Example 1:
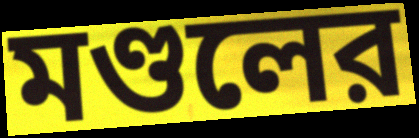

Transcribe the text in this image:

মণ্ডলের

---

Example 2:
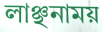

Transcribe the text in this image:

লাঞ্ছনাময়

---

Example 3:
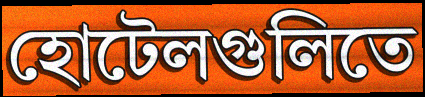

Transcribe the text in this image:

হোটেলগুলিতে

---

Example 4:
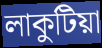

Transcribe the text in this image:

লাকুটিয়া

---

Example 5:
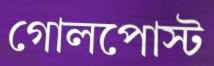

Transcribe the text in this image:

গোলপোস্ট